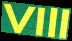
VIll